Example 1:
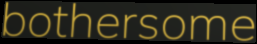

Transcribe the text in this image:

bothersome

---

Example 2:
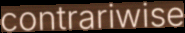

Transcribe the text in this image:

contrariwise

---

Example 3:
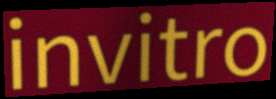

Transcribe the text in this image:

invitro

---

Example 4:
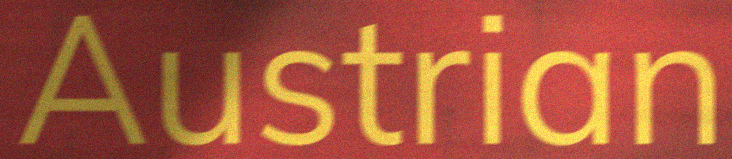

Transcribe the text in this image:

Austrian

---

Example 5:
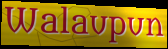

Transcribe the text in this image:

Walaupun